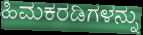
ಹಿಮಕರಡಿಗಳನ್ನು